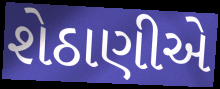
શેઠાણીએ